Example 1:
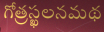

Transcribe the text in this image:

గోత్రస్ఖలనమథ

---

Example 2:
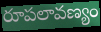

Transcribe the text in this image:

రూపలావణ్యం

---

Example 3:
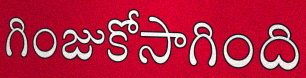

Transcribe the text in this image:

గింజుకోసాగింది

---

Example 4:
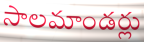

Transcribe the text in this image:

సాలమాండర్లు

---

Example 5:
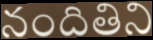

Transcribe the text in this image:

నందితిని